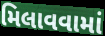
મિલાવવામાં